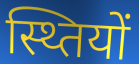
स्थ्तियों